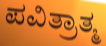
ಪವಿತ್ರಾತ್ಮ